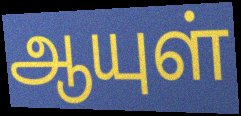
ஆயுள்